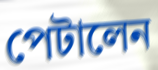
পেটালেন